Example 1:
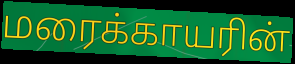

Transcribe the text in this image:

மரைக்காயரின்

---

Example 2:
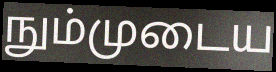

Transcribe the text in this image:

நும்முடைய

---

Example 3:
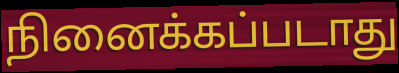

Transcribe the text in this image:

நினைக்கப்படாது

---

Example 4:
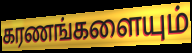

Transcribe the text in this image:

கரணங்களையும்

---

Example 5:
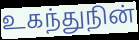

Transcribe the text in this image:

உகந்துநின்